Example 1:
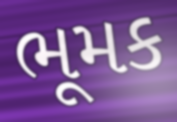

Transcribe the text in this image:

ભૂમક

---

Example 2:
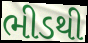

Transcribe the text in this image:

ભીડથી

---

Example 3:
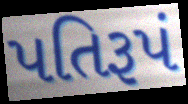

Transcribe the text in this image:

પતિરૂપં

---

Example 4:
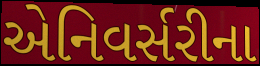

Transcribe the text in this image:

એનિવર્સરીના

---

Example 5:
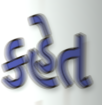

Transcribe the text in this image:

કહેત